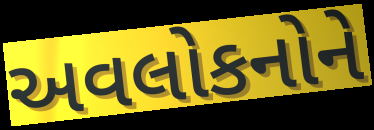
અવલોકનોને